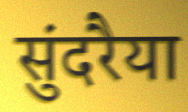
सुंदरैया